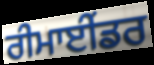
ਰੀਮਾਈਂਡਰ